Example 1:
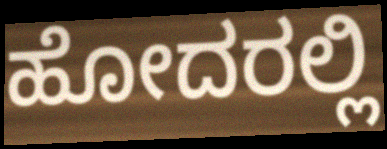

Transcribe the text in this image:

ಹೋದರಲ್ಲಿ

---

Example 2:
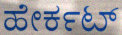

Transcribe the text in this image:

ಹೇರ್ಕಟ್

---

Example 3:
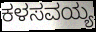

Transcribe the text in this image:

ಕಳಸವಯ್ಯ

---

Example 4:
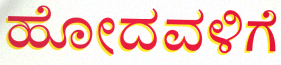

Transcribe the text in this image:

ಹೋದವಳಿಗೆ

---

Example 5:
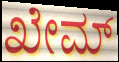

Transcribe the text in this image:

ಖೇಮ್